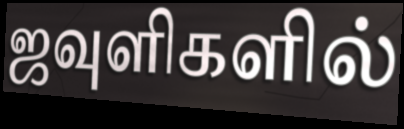
ஜவுளிகளில்